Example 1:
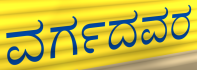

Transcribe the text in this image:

ವರ್ಗದವರ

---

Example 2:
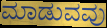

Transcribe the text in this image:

ಮಾಡುವವು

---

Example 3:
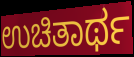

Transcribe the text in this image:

ಉಚಿತಾರ್ಥ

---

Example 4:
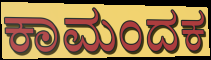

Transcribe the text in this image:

ಕಾಮಂದಕ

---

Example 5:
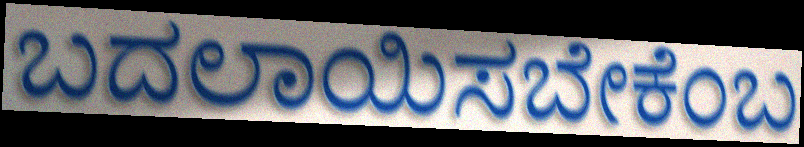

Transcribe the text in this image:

ಬದಲಾಯಿಸಬೇಕೆಂಬ